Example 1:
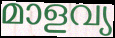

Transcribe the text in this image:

മാളവ്യ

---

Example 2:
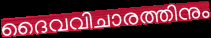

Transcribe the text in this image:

ദൈവവിചാരത്തിനും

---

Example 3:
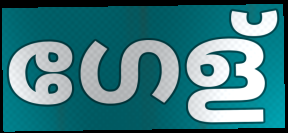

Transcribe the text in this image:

ഗേള്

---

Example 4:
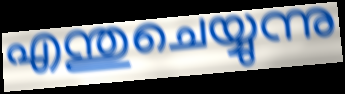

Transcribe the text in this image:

എന്തുചെയ്യുന്നു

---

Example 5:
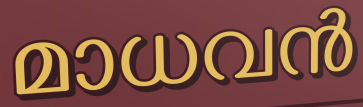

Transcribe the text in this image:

മാധവൻ